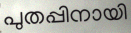
പുതപ്പിനായി